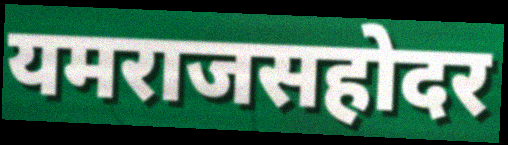
यमराजसहोदर